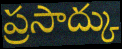
ప్రసాద్కు